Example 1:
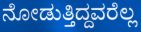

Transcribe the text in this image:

ನೋಡುತ್ತಿದ್ದವರೆಲ್ಲ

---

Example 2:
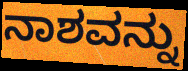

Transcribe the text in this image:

ನಾಶವನ್ನು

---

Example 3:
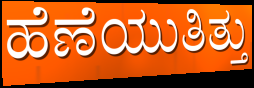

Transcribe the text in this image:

ಹೆಣೆಯುತಿತ್ತು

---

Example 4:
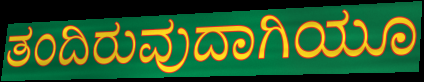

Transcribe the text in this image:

ತಂದಿರುವುದಾಗಿಯೂ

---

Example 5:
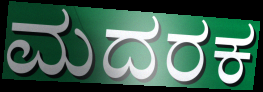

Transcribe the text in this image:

ಮದರಕ